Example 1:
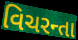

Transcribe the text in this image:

વિચરન્તા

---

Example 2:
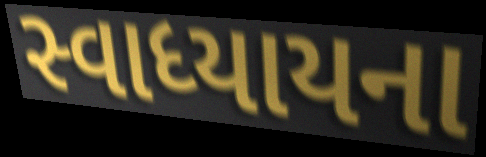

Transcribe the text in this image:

સ્વાધ્યાયના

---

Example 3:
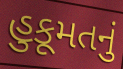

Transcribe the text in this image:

હુકૂમતનું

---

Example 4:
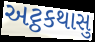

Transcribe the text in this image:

અટ્ઠકથાસુ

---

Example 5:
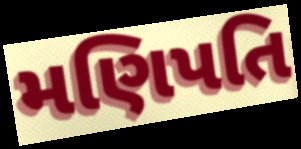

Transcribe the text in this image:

મણિપતિ